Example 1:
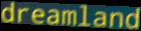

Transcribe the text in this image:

dreamland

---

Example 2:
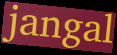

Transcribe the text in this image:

jangal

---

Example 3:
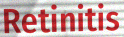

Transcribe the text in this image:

Retinitis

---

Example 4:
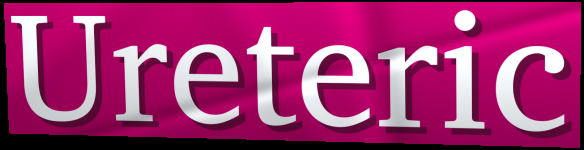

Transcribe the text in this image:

Ureteric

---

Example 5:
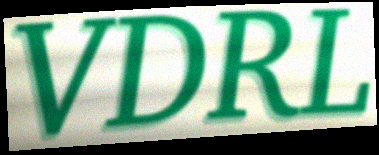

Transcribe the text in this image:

VDRL